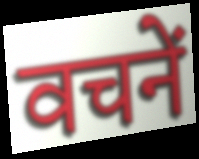
वचनें